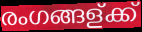
രംഗങ്ങള്ക്ക്